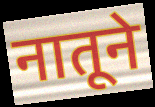
नातूने